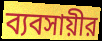
ব্যবসায়ীর